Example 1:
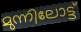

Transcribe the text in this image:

മുന്നിലോട്ട്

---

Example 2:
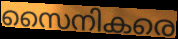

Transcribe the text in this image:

സൈനികരെ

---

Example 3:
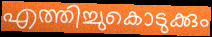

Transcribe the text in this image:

എത്തിച്ചുകൊടുക്കും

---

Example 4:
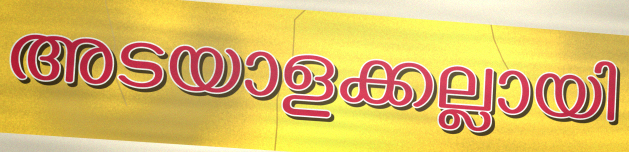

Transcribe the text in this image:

അടയാളക്കല്ലായി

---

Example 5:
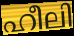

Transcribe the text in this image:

ഹീലി